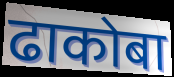
ढाकोबा